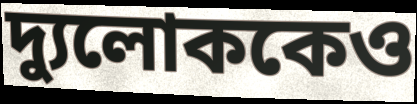
দ্যুলোককেও